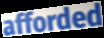
afforded